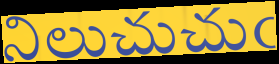
నిలుచుచుఁ